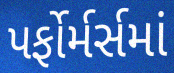
પર્ફોર્મર્સમાં